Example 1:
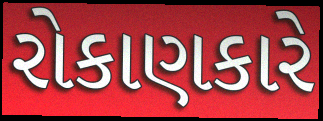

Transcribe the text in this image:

રોકાણકારે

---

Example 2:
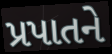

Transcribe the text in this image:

પ્રપાતને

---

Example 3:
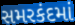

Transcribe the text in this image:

સમરકંદમાં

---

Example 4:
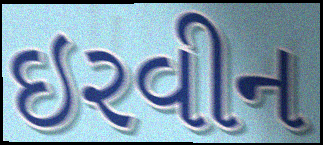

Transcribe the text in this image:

ઇરવીન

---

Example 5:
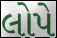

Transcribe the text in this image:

લોપે